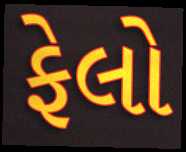
ફેલો